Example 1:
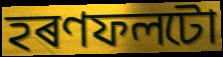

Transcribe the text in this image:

হৰণফলটো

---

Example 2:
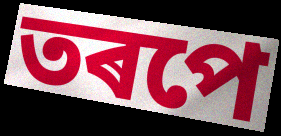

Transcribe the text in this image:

তৰপে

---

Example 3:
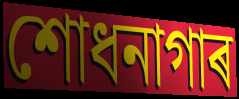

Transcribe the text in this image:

শোধনাগাৰ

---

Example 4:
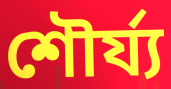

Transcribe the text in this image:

শৌৰ্য্য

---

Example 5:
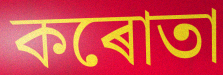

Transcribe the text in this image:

কৰোতা